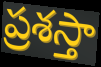
ప్రశస్తా